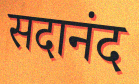
सदानंद